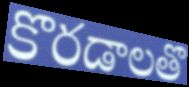
కొరడాలతొ